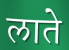
लाते